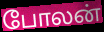
போலன்